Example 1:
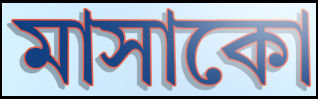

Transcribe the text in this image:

মাসাকো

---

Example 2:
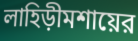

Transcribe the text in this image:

লাহিড়ীমশায়ের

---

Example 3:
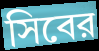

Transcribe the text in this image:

সিবের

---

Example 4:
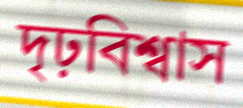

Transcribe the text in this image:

দৃঢ়বিশ্বাস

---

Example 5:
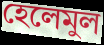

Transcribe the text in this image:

হেলেমুল